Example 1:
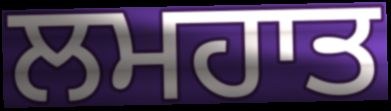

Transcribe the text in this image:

ਲਮਹਾਤ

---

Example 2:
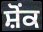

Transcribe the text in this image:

ਸ਼ੋਂਕ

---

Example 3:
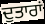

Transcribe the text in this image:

ਦੁਤਾਰਾਂ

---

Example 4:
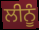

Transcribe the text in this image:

ਲੀਨੂੰ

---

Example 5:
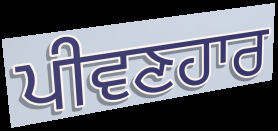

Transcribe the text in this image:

ਪੀਵਣਹਾਰ